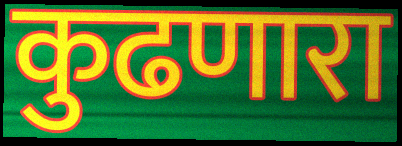
कुढणारा